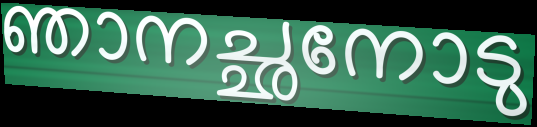
ഞാനച്ഛനോടു